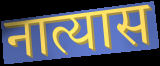
नात्यास